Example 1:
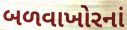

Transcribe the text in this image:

બળવાખોરનાં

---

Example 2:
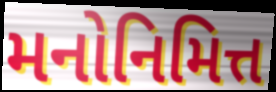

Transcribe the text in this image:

મનોનિમિત્ત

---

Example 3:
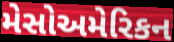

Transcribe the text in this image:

મેસોઅમેરિકન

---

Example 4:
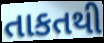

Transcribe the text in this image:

તાકતથી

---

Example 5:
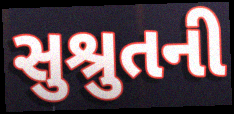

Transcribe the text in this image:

સુશ્રુતની